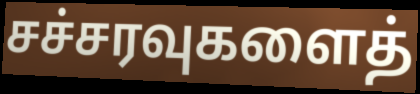
சச்சரவுகளைத்